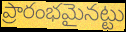
ప్రారంభమైనట్టు